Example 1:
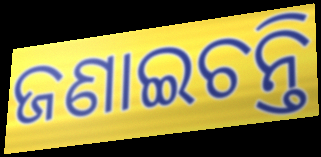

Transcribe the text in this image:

ଜଣାଇଚନ୍ତି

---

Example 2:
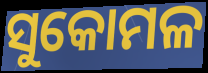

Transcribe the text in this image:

ସୁକୋମଳ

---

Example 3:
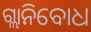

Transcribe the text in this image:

ଗ୍ଲାନିବୋଧ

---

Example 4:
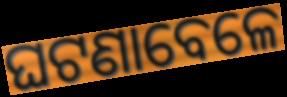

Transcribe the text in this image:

ଘଟଣାବେଳେ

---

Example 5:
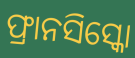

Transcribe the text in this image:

ଫ୍ରାନସିସ୍କୋ